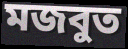
মজবুত